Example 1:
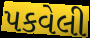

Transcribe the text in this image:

પકવેલી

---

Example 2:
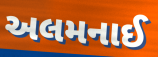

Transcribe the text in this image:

અલમનાઈ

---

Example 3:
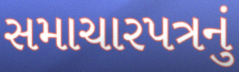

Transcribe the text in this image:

સમાચારપત્રનું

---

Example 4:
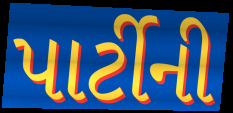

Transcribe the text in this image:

પાર્ટીની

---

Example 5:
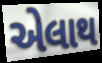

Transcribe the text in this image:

એલાથ